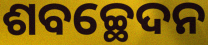
ଶବଚ୍ଛେଦନ